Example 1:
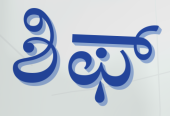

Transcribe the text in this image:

ಶಿಫ್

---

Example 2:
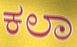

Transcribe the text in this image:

ಕಲಾ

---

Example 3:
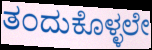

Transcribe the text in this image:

ತಂದುಕೊಳ್ಳಲೇ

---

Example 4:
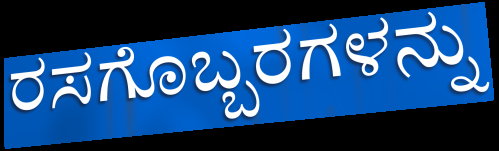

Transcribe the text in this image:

ರಸಗೊಬ್ಬರಗಳನ್ನು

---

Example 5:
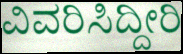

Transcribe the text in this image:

ವಿವರಿಸಿದ್ದೀರಿ